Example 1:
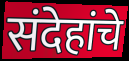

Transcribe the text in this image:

संदेहांचे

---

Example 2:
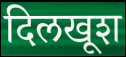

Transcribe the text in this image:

दिलखूश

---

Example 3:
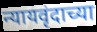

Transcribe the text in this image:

न्यायवृंदाच्या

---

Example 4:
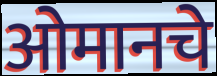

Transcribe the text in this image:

ओमानचे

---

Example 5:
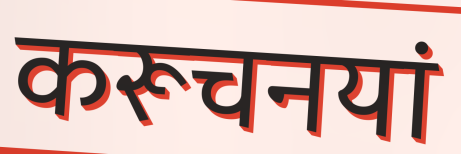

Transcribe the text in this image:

करूचनयां